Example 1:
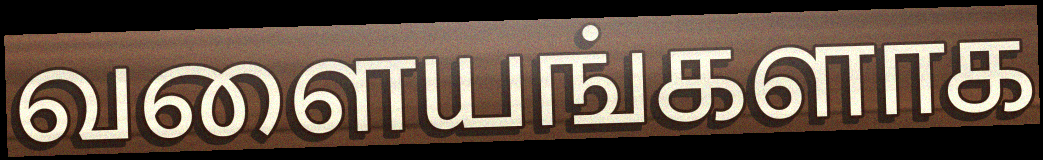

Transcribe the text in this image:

வளையங்களாக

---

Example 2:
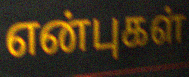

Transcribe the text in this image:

என்புகள்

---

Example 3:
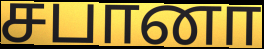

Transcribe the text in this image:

சபானா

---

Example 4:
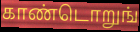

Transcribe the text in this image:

காண்டொறுங்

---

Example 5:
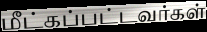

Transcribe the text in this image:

மீட்கப்பட்டவர்கள்